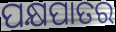
ପକ୍ଷପାତର